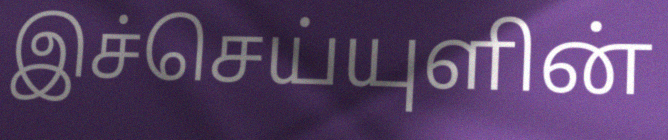
இச்செய்யுளின்